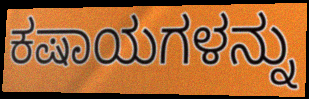
ಕಷಾಯಗಳನ್ನು